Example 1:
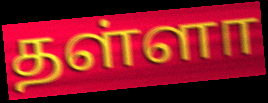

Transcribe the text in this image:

தள்ளா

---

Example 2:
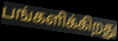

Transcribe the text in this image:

பங்களிக்கிறது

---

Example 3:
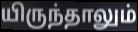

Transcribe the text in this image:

யிருந்தாலும்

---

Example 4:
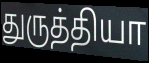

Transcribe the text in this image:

துருத்தியா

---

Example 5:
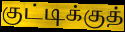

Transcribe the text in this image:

குட்டிக்குத்